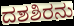
ದಶಶಿರನು